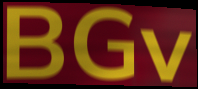
BGv